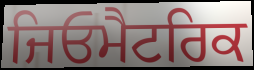
ਜਿਓਮੈਟਰਿਕ